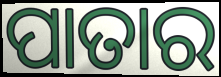
ପାତାର